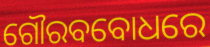
ଗୌରବବୋଧରେ